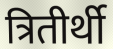
त्रितीर्थी